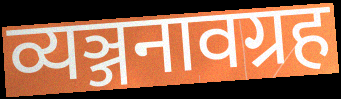
व्यञ्जनावग्रह